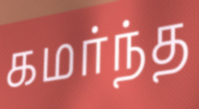
கமர்ந்த